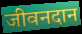
जीवनदान